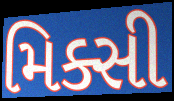
મિક્સી